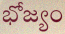
భోజ్యం